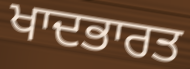
ਖਾਦਭਾਰਤ